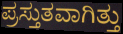
ಪ್ರಸ್ತುತವಾಗಿತ್ತು